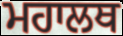
ਮਹਾਲਥ